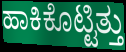
ಹಾಕಿಕೊಟ್ಟಿತ್ತು